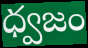
ధ్వజం